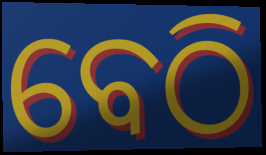
ବେଠି